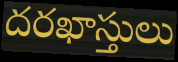
దరఖాస్తులు